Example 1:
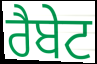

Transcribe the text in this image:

ਰੈਬੇਟ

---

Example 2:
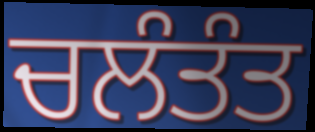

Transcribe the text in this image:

ਚਲੰਤੰਤ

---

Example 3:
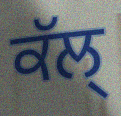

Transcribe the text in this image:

ਕੱਲ੍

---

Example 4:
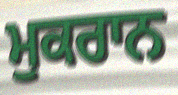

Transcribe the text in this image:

ਮੁਕਰਾਨ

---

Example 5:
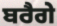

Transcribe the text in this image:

ਬਰੈਗੇ